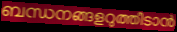
ബന്ധനങ്ങളറുത്തീടാൻ